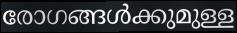
രോഗങ്ങൾക്കുമുള്ള